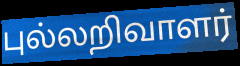
புல்லறிவாளர்